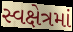
સ્વક્ષેત્રમાં